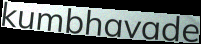
kumbhavade